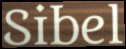
Sibel